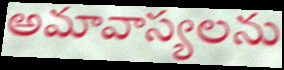
అమావాస్యలను